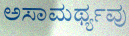
ಅಸಾಮರ್ಥ್ಯವು